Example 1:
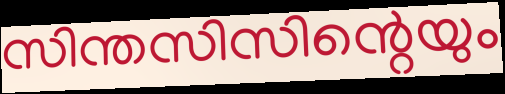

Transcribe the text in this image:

സിന്തസിസിന്റെയും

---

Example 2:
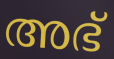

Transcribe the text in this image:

അഭ്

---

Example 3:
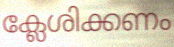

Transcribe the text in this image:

ക്ലേശിക്കണം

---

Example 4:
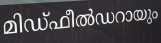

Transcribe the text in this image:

മിഡ്ഫീൽഡറായും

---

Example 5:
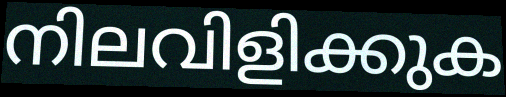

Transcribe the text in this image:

നിലവിളിക്കുക